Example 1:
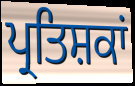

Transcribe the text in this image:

ਪ੍ਰਤਿਸ਼ਕਾਂ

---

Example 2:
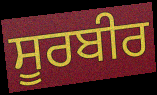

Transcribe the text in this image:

ਸੂਰਬੀਰ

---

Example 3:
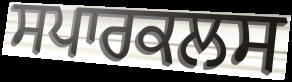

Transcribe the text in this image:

ਸਪਾਰਕਲਸ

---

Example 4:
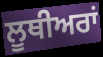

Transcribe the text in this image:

ਲੂਥੀਅਰਾਂ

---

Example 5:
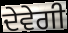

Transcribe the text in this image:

ਦੇਵੇਗੀ